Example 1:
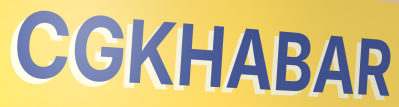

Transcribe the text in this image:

CGKHABAR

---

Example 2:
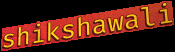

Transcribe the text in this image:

shikshawali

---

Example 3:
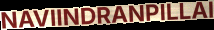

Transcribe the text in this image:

NAVIINDRANPILLAI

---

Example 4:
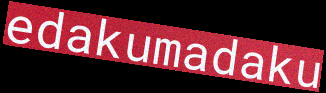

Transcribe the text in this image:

edakumadaku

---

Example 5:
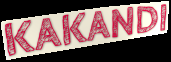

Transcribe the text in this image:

KAKANDI